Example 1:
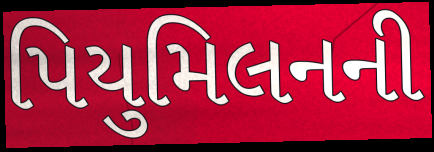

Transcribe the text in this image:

પિયુમિલનની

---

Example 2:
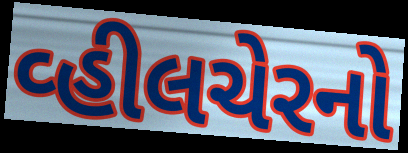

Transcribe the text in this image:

વ્હીલચેરનો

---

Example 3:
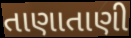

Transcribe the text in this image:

તાણાતાણી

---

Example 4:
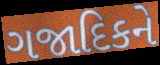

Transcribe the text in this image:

ગજાદિકને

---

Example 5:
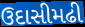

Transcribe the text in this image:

ઉદાસીમઢી